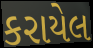
કરાયેલ